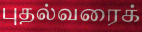
புதல்வரைக்